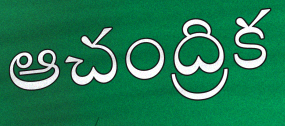
ఆచంద్రిక